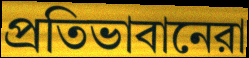
প্রতিভাবানেরা